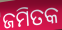
ଜମିତକ